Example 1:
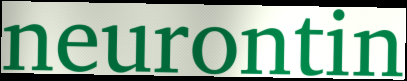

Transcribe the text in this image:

neurontin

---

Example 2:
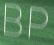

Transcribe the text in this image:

BP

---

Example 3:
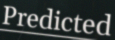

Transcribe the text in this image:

Predicted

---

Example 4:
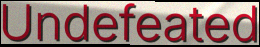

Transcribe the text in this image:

Undefeated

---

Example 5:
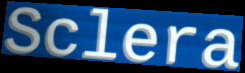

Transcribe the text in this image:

Sclera